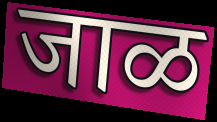
जाळ